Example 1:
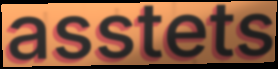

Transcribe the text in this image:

asstets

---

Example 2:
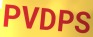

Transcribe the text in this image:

PVDPS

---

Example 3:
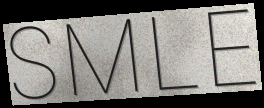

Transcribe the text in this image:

SMLE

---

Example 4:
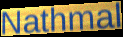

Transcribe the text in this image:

Nathmal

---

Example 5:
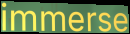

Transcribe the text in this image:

immerse